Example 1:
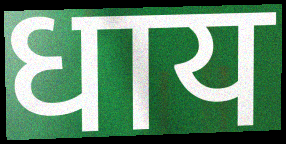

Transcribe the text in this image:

धाय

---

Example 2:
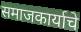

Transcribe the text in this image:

समाजकार्याचे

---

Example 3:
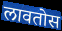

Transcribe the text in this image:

लावतोस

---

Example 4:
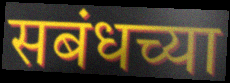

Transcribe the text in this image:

सबंधच्या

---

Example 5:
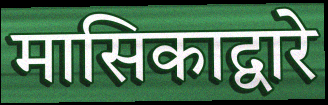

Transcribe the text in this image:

मासिकाद्वारे